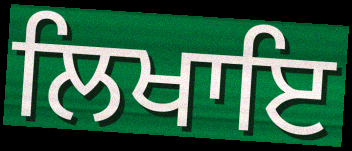
ਲਿਖਾਇ